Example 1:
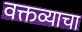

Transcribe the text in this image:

वक्तव्याचा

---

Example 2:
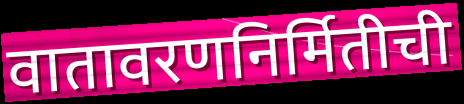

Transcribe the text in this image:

वातावरणनिर्मितीची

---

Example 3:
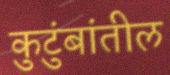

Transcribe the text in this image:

कुटुंबांतील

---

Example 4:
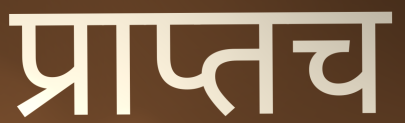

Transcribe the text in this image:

प्राप्तच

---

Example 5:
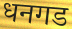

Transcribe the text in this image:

धनगड